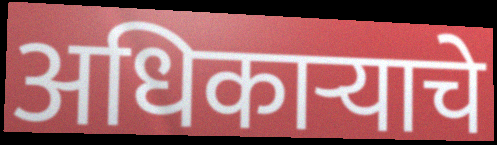
अधिकाऱ्याचे